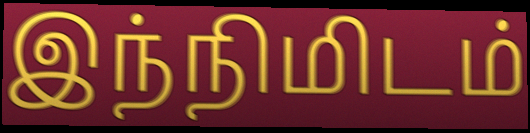
இந்நிமிடம்